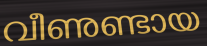
വീണുണ്ടായ